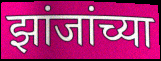
झांजांच्या